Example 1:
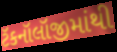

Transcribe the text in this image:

ટૅકનૉલૉજીમાંથી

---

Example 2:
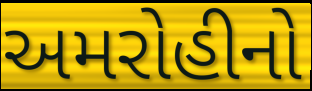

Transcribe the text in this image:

અમરોહીનો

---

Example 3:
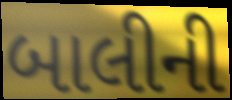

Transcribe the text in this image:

બાલીની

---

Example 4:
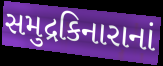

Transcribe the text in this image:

સમુદ્રકિનારાનાં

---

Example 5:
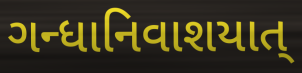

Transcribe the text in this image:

ગન્ધાનિવાશયાત્